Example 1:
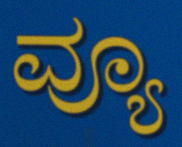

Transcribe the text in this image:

ವ್ಯೂ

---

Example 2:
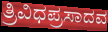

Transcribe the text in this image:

ತ್ರಿವಿಧಪ್ರಸಾದವ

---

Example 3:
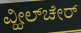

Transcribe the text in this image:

ವ್ಹೀಲ್‌ಚೇರ್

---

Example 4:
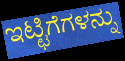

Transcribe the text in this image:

ಇಟ್ಟಿಗೆಗಳನ್ನು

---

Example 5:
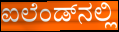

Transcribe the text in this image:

ಐಲೆಂಡ್‌ನಲ್ಲಿ